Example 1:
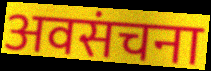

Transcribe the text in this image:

अवसंचना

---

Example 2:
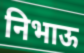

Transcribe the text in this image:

निभाऊ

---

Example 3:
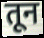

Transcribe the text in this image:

तून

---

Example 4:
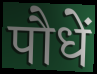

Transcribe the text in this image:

पौधें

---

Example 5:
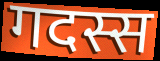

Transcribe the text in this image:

गदस्स